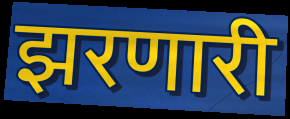
झरणारी